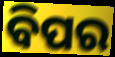
ବିପର